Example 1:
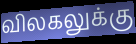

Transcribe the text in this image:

விலகலுக்கு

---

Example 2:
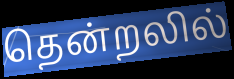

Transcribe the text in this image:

தென்றலில்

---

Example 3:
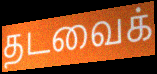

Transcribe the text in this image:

தடவைக்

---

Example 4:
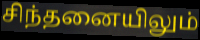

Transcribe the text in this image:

சிந்தனையிலும்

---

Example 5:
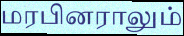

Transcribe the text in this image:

மரபினராலும்